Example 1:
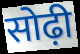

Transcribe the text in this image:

सोढ़ी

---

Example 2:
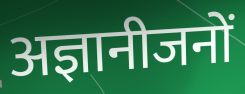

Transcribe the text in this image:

अज्ञानीजनों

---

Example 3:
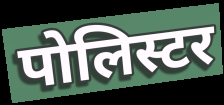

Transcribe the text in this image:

पोलिस्टर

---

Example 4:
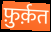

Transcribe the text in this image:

फ़ुर्क़त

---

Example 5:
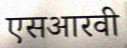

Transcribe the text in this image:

एसआरवी